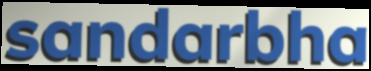
sandarbha